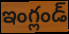
ఇంగ్లండ్